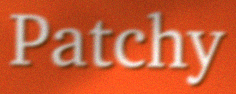
Patchy